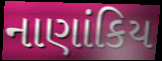
નાણાંકિય